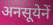
अनसूयेनें